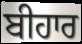
ਬੀਹਾਰ